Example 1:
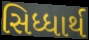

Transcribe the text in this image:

સિધ્ધાર્થ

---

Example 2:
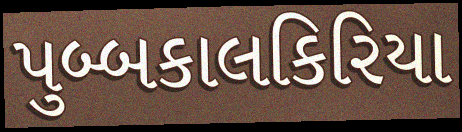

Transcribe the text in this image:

પુબ્બકાલકિરિયા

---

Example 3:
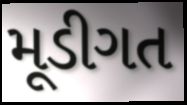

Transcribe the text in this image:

મૂડીગત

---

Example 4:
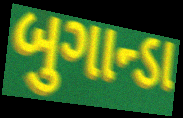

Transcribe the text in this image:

બુગાન્ડા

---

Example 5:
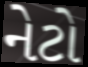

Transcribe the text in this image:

નેટો